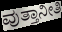
ವುತ್ತಾನೀತಿ